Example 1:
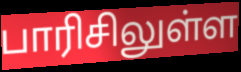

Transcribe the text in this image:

பாரிசிலுள்ள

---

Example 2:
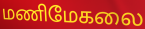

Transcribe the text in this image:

மணிமேகலை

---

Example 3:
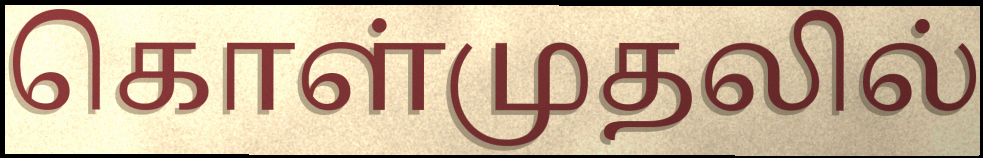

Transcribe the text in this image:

கொள்முதலில்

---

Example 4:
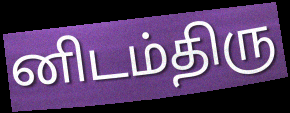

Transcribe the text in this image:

னிடம்திரு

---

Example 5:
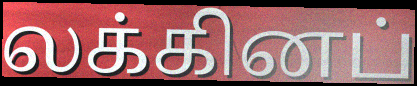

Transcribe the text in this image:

லக்கினப்